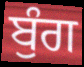
ਬੁੰਗ